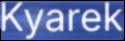
Kyarek